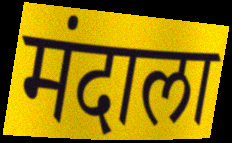
मंदाला